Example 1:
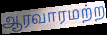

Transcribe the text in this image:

ஆரவாரமற்ற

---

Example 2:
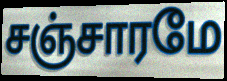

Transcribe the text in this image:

சஞ்சாரமே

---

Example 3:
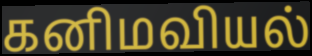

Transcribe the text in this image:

கனிமவியல்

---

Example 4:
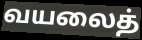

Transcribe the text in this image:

வயலைத்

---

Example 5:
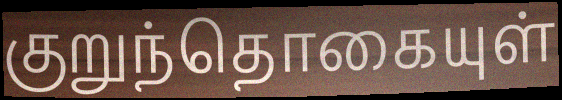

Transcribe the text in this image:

குறுந்தொகையுள்